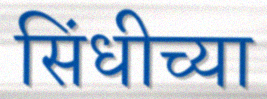
सिंधीच्या